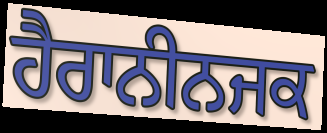
ਹੈਰਾਨੀਨਜਕ